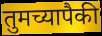
तुमच्यापैकी